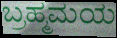
ಬ್ರಹ್ಮಮಯ